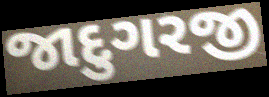
જાદુગરજી